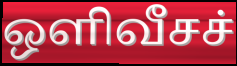
ஒளிவீசச்